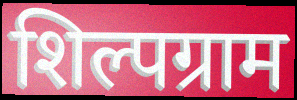
शिल्पग्राम